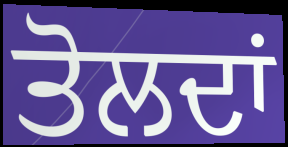
ਤੋਲਦਾਂ